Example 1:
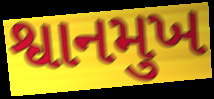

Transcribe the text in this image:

શ્વાનમુખ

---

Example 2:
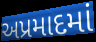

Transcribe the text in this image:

અપ્રમાદમાં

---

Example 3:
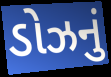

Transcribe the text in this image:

ડોઝનું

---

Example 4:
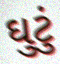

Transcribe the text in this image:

ઘુટું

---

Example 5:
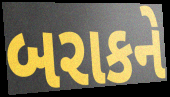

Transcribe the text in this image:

બરાકને